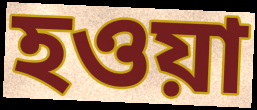
হওয়া